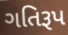
ગતિરૂપ